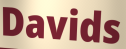
Davids